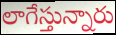
లాగేస్తున్నారు